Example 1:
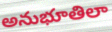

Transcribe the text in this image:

అనుభూతిలా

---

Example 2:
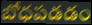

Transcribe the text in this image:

బోధపడడం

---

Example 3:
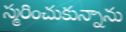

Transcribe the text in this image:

స్మరించుకున్నాను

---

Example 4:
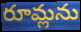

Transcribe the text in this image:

రూమ్లను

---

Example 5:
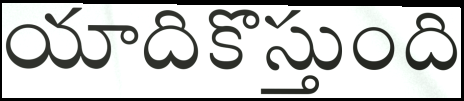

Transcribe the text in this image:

యాదికొస్తుంది